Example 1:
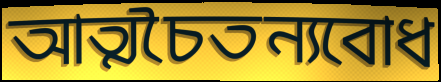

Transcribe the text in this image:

আত্মচৈতন্যবোধ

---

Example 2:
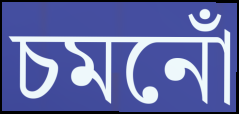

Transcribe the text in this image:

চমনোঁ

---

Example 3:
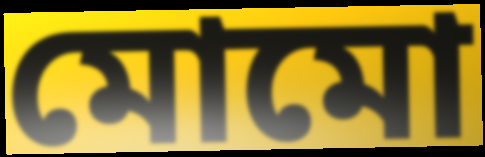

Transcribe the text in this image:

মোমো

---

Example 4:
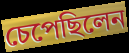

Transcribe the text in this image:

চেপেছিলেন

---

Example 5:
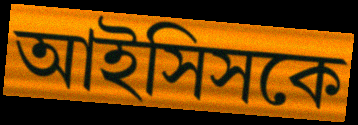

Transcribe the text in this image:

আইসিসকে